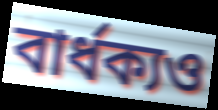
বার্ধক্যও